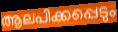
ആലപിക്കപ്പെടും